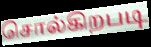
சொல்கிறபடி